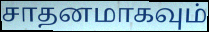
சாதனமாகவும்